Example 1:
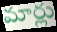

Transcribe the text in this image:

మార్లు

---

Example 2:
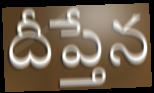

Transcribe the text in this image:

దీప్తేన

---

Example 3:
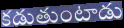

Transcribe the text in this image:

కడుతుంటాడు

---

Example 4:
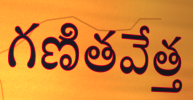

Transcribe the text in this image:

గణితవేత్త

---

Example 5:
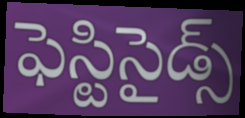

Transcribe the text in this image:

ఫెస్టిసైడ్స్